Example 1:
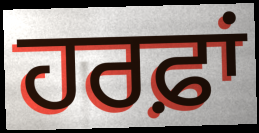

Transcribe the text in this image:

ਹਰਫ਼ਾਂ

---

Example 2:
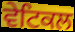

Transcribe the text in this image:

ਵੇਟਿਕਲ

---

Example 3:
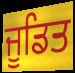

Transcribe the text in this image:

ਜੂਡਿਤ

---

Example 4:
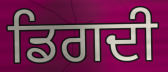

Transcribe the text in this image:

ਡਿਗਦੀ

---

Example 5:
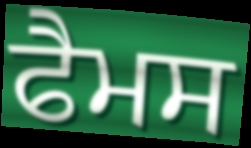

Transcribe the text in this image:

ਫੈਮਸ